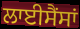
ਲਾਈਸੈਂਸਾਂ